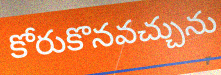
కోరుకొనవచ్చును